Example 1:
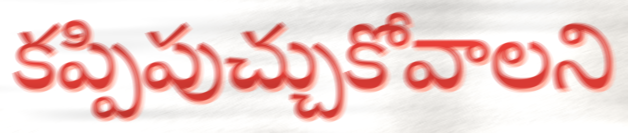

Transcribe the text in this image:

కప్పిపుచ్చుకోవాలని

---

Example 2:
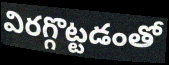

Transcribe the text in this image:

విరగ్గొట్టడంతో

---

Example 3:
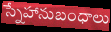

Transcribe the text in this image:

స్నేహానుబంధాలు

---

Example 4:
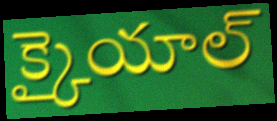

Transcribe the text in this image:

క్కైయాల్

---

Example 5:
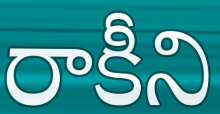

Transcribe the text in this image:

రాకీని